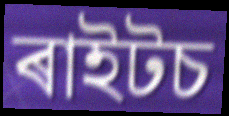
ৰাইটচ